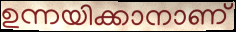
ഉന്നയിക്കാനാണ്